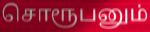
சொரூபனும்